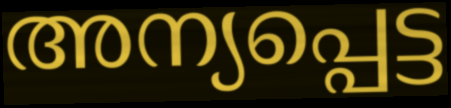
അന്യപ്പെട്ട